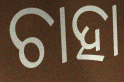
ଚାହା